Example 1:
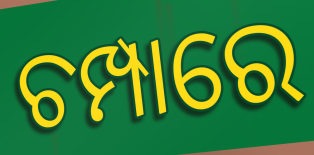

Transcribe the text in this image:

ଚମ୍ପାରେ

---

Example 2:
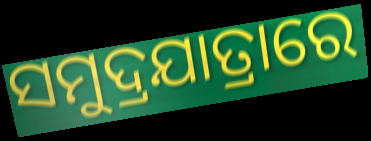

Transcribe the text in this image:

ସମୁଦ୍ରଯାତ୍ରାରେ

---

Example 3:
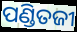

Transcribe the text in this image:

ପଣ୍ଡିତଜୀ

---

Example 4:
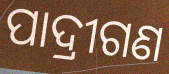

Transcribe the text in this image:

ପାଦ୍ରୀଗଣ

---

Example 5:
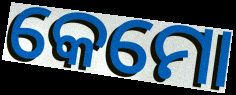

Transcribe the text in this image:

କେମୋ